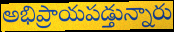
అభిప్రాయపడ్తున్నారు